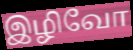
இழிவோ